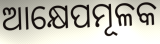
ଆକ୍ଷେପମୂଳକ